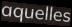
aquelles